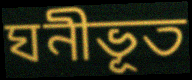
ঘনীভূত